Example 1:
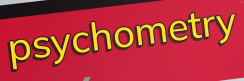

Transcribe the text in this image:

psychometry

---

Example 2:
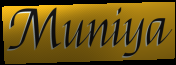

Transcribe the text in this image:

Muniya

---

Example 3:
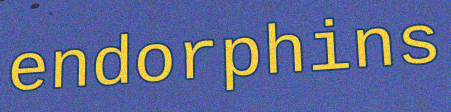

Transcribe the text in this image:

endorphins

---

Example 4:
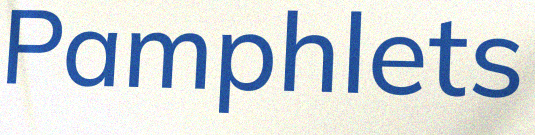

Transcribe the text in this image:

Pamphlets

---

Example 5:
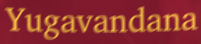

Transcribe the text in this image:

Yugavandana